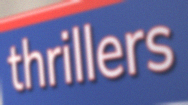
thrillers